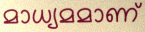
മാധ്യമമാണ്